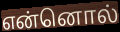
என்னொல்